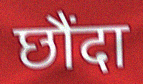
छौंदा